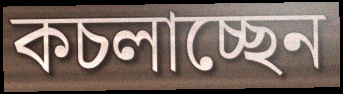
কচলাচ্ছেন